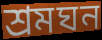
শ্রমঘন